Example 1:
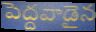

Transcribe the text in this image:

పెద్దవాడైన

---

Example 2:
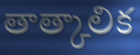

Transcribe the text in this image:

తాత్కాలిక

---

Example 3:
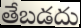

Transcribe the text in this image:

తేబడదు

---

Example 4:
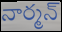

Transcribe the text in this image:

నార్మన్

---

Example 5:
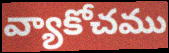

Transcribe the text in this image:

వ్యాకోచము